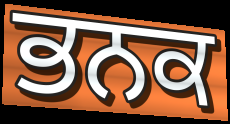
ਭਨਕ